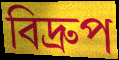
বিদ্ৰুপ